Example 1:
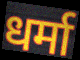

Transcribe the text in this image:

धर्मा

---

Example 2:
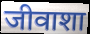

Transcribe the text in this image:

जीवाशा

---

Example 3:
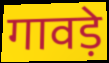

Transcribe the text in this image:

गावड़े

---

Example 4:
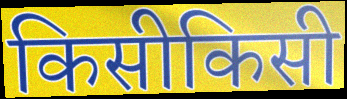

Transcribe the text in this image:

किसीकिसी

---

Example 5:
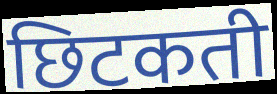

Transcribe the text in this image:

छिटकती